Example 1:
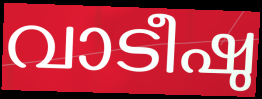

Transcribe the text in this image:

വാടീഷു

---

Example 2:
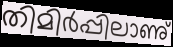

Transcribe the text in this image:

തിമിർപ്പിലാണു്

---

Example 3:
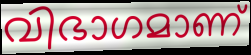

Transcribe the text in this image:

വിഭാഗമാണ്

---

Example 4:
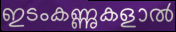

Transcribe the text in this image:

ഇടംകണ്ണുകളാൽ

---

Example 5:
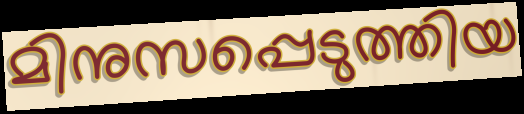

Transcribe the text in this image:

മിനുസപ്പെടുത്തിയ